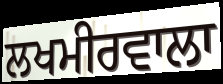
ਲਖਮੀਰਵਾਲਾ